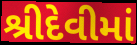
શ્રીદેવીમાં